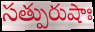
సత్పురుషాః